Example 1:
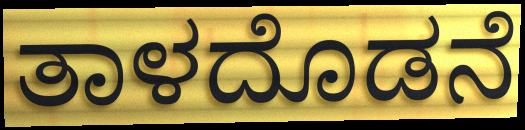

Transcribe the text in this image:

ತಾಳದೊಡನೆ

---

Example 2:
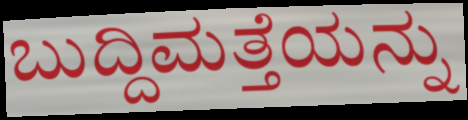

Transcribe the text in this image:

ಬುದ್ದಿಮತ್ತೆಯನ್ನು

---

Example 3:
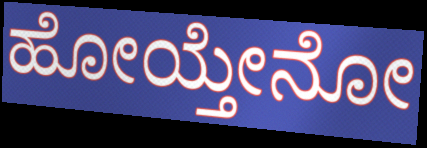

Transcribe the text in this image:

ಹೋಯ್ತೇನೋ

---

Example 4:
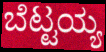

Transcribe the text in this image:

ಬೆಟ್ಟಯ್ಯ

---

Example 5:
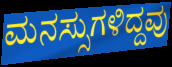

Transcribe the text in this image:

ಮನಸ್ಸುಗಳಿದ್ದವು